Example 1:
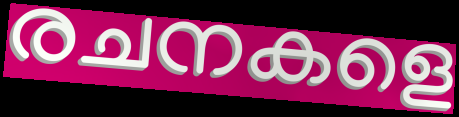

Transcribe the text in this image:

രചനകളെ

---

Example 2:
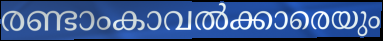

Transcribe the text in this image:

രണ്ടാംകാവൽക്കാരെയും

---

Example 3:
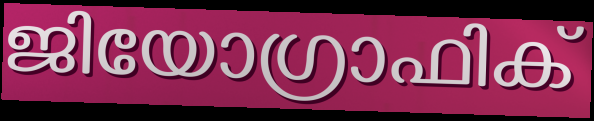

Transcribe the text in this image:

ജിയോഗ്രാഫിക്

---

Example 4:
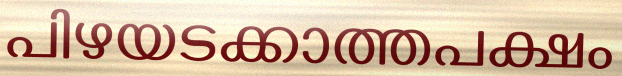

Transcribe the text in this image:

പിഴയടക്കാത്തപക്ഷം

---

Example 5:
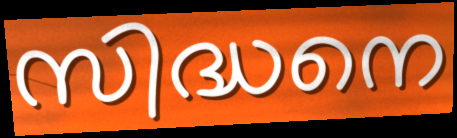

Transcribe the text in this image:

സിദ്ധനെ